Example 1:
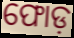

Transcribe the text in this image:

ଫୋଡ଼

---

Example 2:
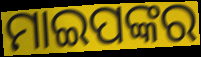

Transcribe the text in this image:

ମାଇପଙ୍କର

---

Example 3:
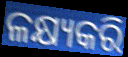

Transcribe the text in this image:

ଳକ୍ଷ୍ୟକରି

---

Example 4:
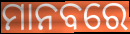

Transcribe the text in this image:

ମାନବରେ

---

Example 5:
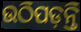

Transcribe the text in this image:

ଉଠିପଡ଼ନ୍ତି